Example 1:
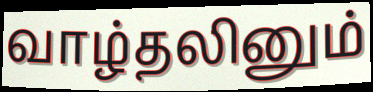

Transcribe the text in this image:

வாழ்தலினும்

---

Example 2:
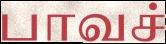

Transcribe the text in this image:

பாவச்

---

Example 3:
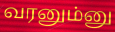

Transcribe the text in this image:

வரனும்னு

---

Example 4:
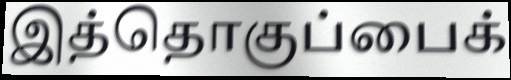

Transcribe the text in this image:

இத்தொகுப்பைக்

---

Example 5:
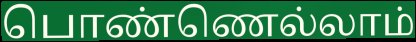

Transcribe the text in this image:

பொண்ணெல்லாம்